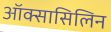
ऑक्सासिलिन